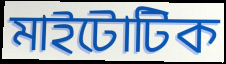
মাইটোটিক